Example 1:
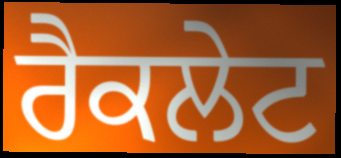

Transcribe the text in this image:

ਰੈਕਲੇਟ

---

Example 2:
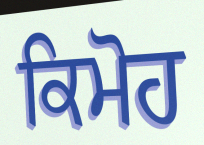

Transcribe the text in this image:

ਕਿਮੋਹ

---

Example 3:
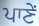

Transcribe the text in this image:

ਪਾਣੇਂ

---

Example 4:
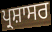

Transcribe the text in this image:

ਪ੍ਰਸ਼ਾਸਰ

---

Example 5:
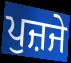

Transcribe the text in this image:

ਪੁਜ਼ਜੇ